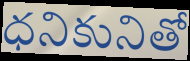
ధనికునితో